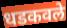
धडकवले